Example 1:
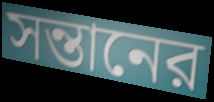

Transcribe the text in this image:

সন্তানের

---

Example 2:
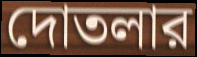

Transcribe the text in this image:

দোতলার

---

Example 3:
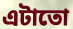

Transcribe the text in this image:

এটাতো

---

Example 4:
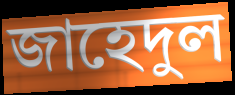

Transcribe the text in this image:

জাহেদুল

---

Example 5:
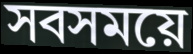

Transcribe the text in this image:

সবসময়ে